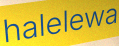
halelewa